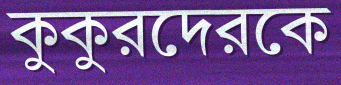
কুকুরদেরকে